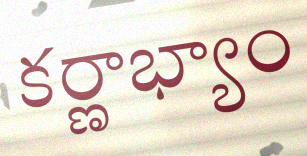
కర్ణాభ్యాం